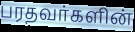
பரதவர்களின்